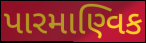
પારમાણ્વિક